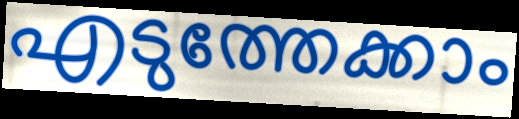
എടുത്തേക്കാം